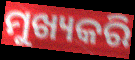
ମୁଖ୍ୟକରି